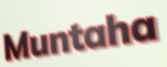
Muntaha